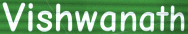
Vishwanath